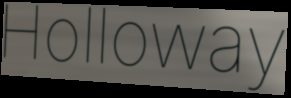
Holloway